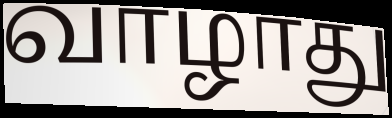
வாழாது